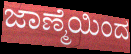
ಜಾಣ್ಮೆಯಿಂದ